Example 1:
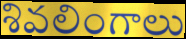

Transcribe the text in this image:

శివలింగాలు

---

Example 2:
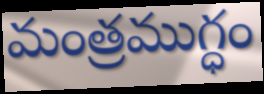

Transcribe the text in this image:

మంత్రముగ్ధం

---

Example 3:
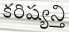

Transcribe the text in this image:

కరిష్యన్తి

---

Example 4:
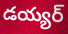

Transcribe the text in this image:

డయ్యర్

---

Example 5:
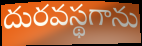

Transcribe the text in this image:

దురవస్థగాను